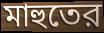
মাহুতের